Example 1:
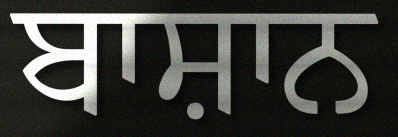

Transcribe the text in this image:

ਬਾਸ਼ਾਨ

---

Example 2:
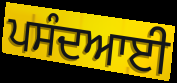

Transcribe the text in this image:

ਪਸੰਦਆਈ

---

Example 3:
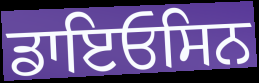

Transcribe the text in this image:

ਡਾਇਓਸਿਨ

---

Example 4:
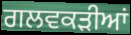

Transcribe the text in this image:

ਗਲਵਕੜੀਆਂ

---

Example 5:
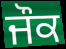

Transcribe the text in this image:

ਜੌਕ